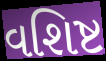
વશિષ્ટ